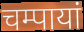
चम्पायां